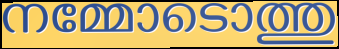
നമ്മോടൊത്തു